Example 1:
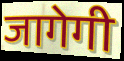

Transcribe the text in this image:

जागेगी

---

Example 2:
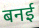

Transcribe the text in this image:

बनई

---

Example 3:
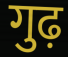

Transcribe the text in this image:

गुढ़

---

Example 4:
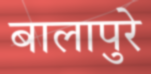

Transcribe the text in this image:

बालापुरे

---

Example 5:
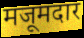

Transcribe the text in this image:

मजूमदार